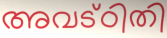
അവട്ഠിതി